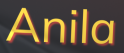
Anila